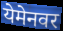
येमेनवर